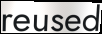
reused